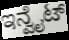
ಇನ್ವೈಟ್